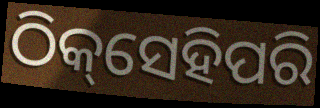
ଠିକ୍‌ସେହିପରି